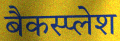
बैकस्प्लेश